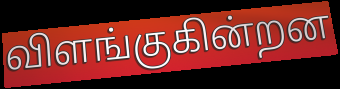
விளங்குகின்றன